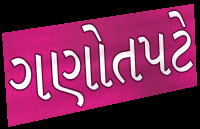
ગણોતપટે